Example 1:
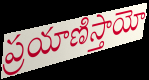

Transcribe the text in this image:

ప్రయాణిస్తాయో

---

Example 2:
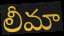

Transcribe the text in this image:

లీమా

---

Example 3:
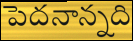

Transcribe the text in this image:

పెదనాన్నది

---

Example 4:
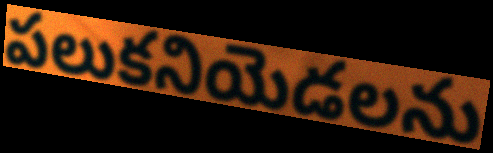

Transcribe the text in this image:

పలుకనియెడలను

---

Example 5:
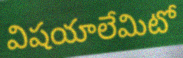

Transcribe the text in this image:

విషయాలేమిటో